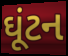
ઘૂંટન